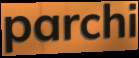
parchi